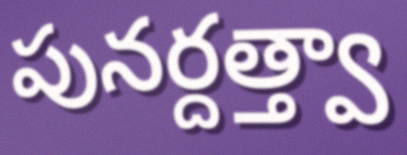
పునర్దత్త్వా